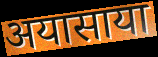
अयासाया